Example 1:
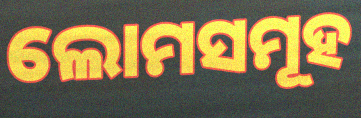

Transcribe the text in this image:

ଲୋମସମୂହ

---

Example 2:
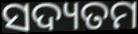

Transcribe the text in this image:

ସଦ୍ୟତମ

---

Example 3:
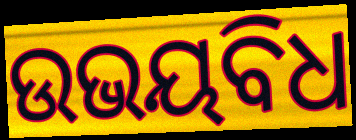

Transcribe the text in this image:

ଉଭୟବିଧ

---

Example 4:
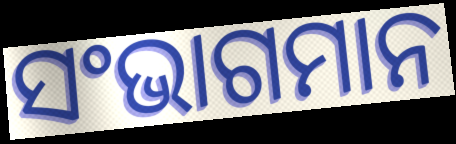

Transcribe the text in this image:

ସଂଭାଗମାନ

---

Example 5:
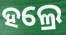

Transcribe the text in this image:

ହଲ୍ରେ